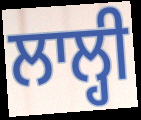
ਲਾਲ੍ਹੀ